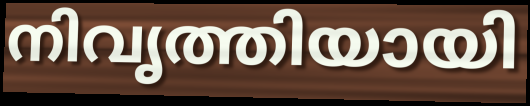
നിവൃത്തിയായി